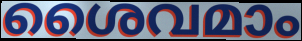
ശൈവമാം